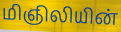
மிஞிலியின்